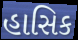
હાસિક